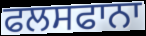
ਫਲਸਫਾਨਾ